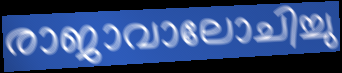
രാജാവാലോചിച്ചു